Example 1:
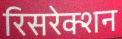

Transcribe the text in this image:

रिसरेक्शन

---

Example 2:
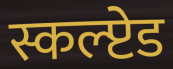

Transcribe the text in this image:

स्कल्प्टेड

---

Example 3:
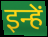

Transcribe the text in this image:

इन्‍हें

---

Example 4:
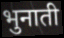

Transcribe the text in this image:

भुनाती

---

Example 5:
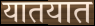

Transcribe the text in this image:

यातयात